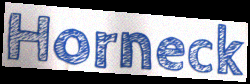
Horneck